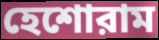
হেশোরাম